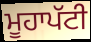
ਮੂਹਾਪੱਟੀ